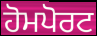
ਹੋਮਪੋਰਟ